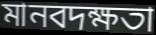
মানবদক্ষতা